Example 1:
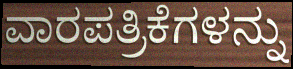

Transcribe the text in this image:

ವಾರಪತ್ರಿಕೆಗಳನ್ನು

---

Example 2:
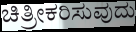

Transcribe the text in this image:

ಚಿತ್ರೀಕರಿಸುವುದು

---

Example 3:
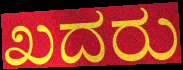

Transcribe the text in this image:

ಖದರು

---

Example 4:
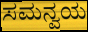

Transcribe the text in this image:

ಸಮನ್ವಯ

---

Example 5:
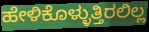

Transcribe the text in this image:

ಹೇಳಿಕೊಳ್ಳುತ್ತಿರಲಿಲ್ಲ